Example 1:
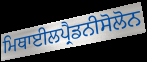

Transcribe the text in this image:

ਮਿਥਾਈਲਪ੍ਰੈਡਨੀਸੋਲੋਨ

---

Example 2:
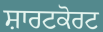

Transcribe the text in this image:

ਸ਼ਾਰਟਕੋਰਟ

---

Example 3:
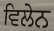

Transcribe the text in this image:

ਵਿਲੇਨ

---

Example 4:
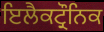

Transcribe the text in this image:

ਇਲੈਕਟ੍ਰੌਨਿਕ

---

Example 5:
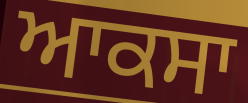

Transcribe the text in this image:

ਆਕਸਾ